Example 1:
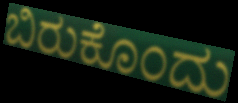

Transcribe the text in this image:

ಬಿರುಕೊಂದು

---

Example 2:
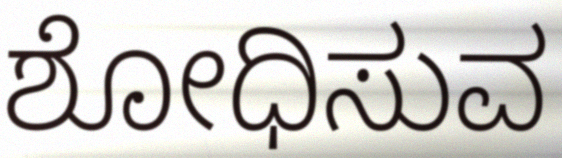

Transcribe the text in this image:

ಶೋಧಿಸುವ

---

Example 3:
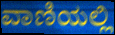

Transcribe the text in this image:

ವಾಣಿಯಲ್ಲಿ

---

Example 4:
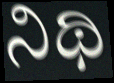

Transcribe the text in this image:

ನಿಥಿ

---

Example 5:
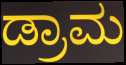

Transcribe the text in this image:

ಡ್ರಾಮ